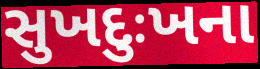
સુખદુઃખના